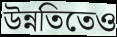
উন্নতিতেও